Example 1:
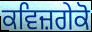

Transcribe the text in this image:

ਕਵਿਜ਼ਗੇਕੋ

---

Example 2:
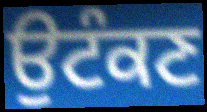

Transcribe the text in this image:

ਉਟੰਕਣ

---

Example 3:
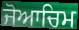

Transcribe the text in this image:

ਜੋਆਚਿਮ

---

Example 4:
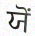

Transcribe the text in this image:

ਯੋਂ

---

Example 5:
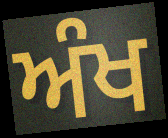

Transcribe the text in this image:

ਅੰਖ